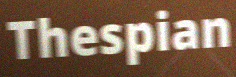
Thespian